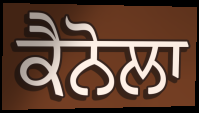
ਕੈਨੋਲਾ